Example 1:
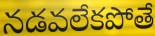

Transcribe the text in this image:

నడవలేకపోతే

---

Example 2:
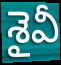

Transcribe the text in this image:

శైవీ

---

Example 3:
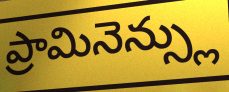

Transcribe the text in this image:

ప్రామినెన్స్లు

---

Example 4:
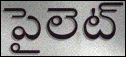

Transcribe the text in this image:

పైలెట్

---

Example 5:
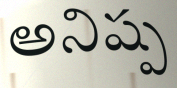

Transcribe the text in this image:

అనిష్ప